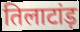
तिलाटांड़